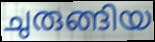
ചുരുങ്ങിയ